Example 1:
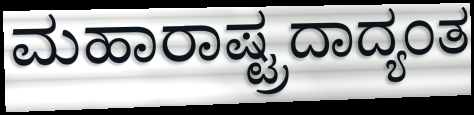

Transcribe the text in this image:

ಮಹಾರಾಷ್ಟ್ರದಾದ್ಯಂತ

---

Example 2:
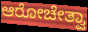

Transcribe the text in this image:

ಆರೋಚೇತ್ವಾ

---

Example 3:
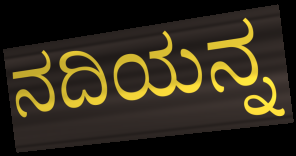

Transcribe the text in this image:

ನದಿಯನ್ನ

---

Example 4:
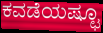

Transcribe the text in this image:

ಕವಡೆಯಷ್ಟೂ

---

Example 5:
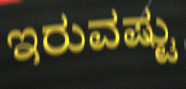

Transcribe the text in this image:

ಇರುವಷ್ಟು